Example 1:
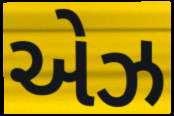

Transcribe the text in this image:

એઝ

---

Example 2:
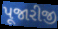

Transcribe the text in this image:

પૂજારીજી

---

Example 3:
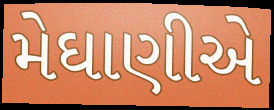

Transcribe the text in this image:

મેઘાણીએ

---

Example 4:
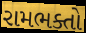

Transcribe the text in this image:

રામભક્તો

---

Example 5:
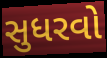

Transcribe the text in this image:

સુધરવો